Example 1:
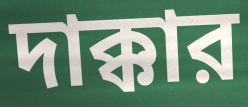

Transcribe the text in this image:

দাক্কার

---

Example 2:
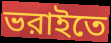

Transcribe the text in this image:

ভরাইতে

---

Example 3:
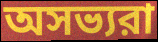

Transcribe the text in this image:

অসভ্যরা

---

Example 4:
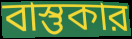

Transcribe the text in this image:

বাস্তুকার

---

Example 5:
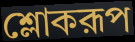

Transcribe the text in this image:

শ্লোকরূপ